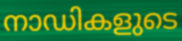
നാഡികളുടെ